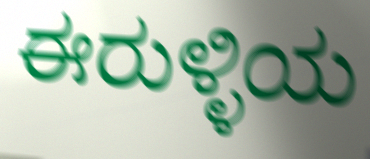
ಈರುಳ್ಳಿಯ